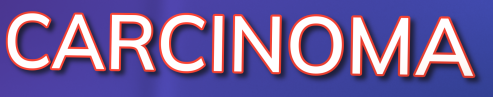
CARCINOMA